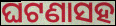
ଘଟଣାସହ